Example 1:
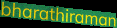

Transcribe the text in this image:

bharathiraman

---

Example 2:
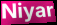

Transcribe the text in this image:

Niyar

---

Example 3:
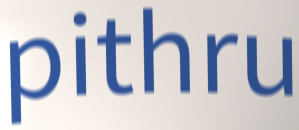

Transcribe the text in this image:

pithru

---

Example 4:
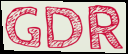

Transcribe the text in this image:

GDR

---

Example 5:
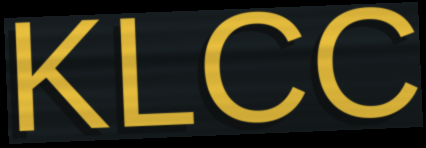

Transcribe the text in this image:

KLCC